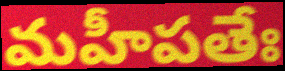
మహీపతేః